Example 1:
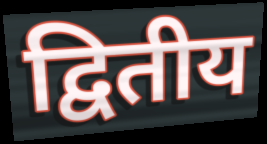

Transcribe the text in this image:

द्वितीय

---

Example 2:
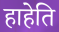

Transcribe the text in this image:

हाहेति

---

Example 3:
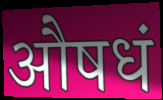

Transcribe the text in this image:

औषधं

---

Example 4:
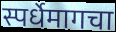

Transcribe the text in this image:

स्पर्धेमागचा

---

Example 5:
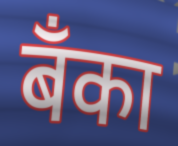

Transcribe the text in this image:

बॅंका